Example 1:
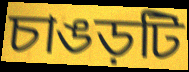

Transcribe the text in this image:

চাঙড়টি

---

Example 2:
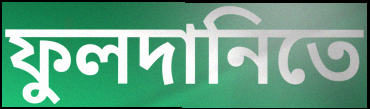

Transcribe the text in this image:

ফুলদানিতে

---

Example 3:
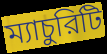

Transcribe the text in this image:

ম্যাচুরিটি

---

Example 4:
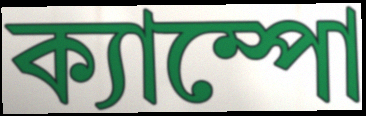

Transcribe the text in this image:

ক্যাম্পো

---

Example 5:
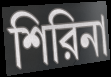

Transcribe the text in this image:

শিরিনা